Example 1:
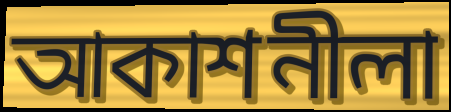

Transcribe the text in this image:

আকাশনীলা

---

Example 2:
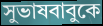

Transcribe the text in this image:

সুভাষবাবুকে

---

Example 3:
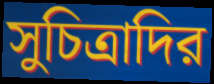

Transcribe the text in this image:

সুচিত্রাদির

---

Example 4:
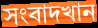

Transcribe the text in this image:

সংবাদখান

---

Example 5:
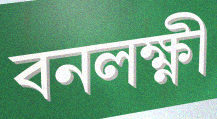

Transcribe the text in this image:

বনলক্ষ্ণী